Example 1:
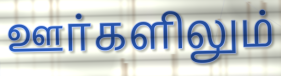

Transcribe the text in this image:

ஊர்களிலும்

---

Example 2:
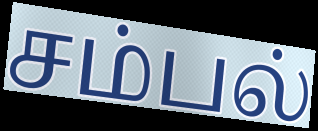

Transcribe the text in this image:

சம்பல்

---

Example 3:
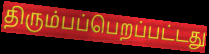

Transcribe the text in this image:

திரும்பப்பெறப்பட்டது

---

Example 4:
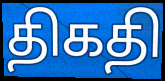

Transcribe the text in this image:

திகதி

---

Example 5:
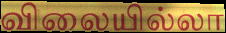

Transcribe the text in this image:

விலையில்லா